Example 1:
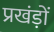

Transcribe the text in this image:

प्रखंड़ों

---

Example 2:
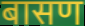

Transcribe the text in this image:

बासण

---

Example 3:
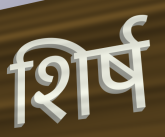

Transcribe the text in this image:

शिर्ष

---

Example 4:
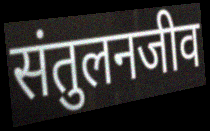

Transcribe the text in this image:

संतुलनजीव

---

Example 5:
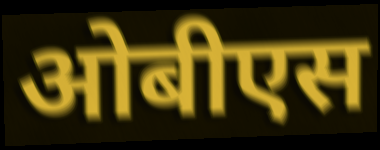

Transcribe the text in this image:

ओबीएस